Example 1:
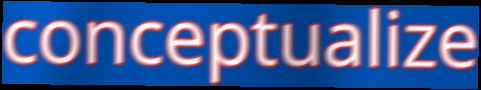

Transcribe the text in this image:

conceptualize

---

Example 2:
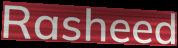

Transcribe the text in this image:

Rasheed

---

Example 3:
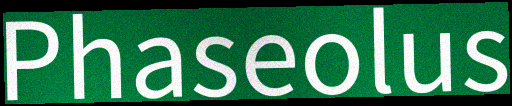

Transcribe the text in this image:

Phaseolus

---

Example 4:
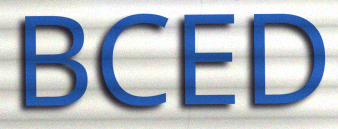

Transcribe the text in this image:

BCED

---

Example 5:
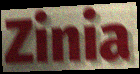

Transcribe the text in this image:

Zinia